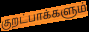
குறட்பாக்களும்